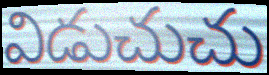
విడుచుచు